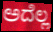
ಅದೆಲ್ಲ